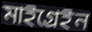
মাইগ্ৰেইন